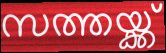
സത്തയ്ക്ക്